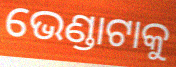
ଭେଣ୍ଡାଟାକୁ